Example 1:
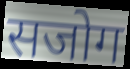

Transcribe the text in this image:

सजोग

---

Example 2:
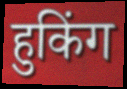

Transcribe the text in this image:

हुकिंग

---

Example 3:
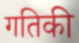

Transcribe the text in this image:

गतिकी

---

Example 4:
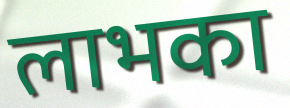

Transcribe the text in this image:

लाभका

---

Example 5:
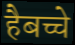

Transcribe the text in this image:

हैबच्चे